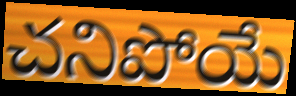
చనిపోయే